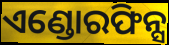
ଏଣ୍ଡୋରଫିନ୍ସ